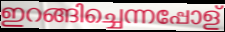
ഇറങ്ങിച്ചെന്നപ്പോള്